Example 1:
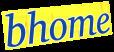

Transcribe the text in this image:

bhome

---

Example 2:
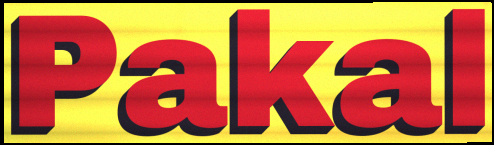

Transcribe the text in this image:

Pakal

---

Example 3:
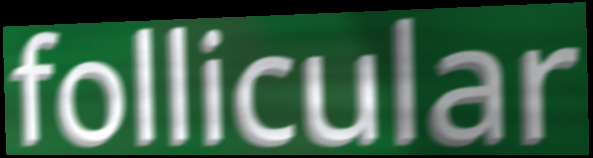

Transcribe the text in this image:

follicular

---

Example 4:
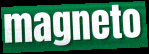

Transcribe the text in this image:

magneto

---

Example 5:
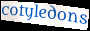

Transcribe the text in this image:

cotyledons